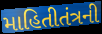
માહિતીતંત્રની